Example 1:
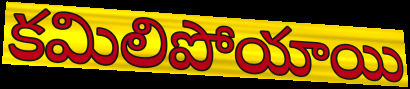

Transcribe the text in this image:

కమిలిపోయాయి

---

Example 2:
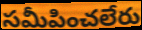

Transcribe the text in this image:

సమీపించలేరు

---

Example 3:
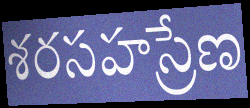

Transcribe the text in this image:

శరసహస్రేణ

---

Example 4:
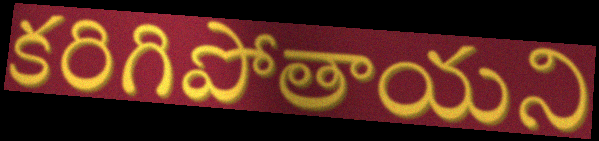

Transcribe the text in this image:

కరిగిపోతాయని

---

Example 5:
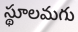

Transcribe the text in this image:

స్థూలమగు